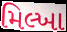
મિલ્ખા